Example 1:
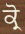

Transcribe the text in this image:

ਕ੍ਰੋ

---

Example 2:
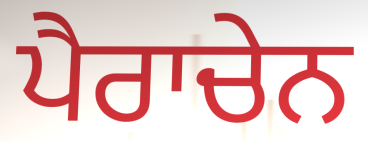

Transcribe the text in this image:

ਪੈਰਾਚੇਨ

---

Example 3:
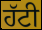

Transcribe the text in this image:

ਹੱਟੀ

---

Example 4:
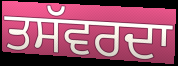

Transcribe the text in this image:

ਤਸੱਵਰਦਾ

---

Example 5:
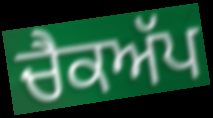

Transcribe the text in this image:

ਚੈਕਅੱਪ